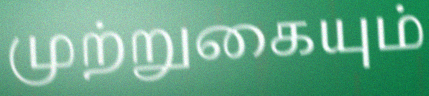
முற்றுகையும்